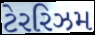
ટેરરિઝમ